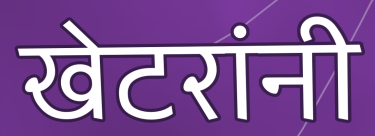
खेटरांनी